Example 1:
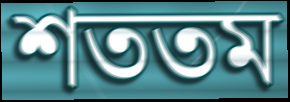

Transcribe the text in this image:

শততম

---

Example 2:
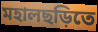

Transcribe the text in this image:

মহালছড়িতে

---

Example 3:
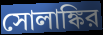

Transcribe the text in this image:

সোলাঙ্কির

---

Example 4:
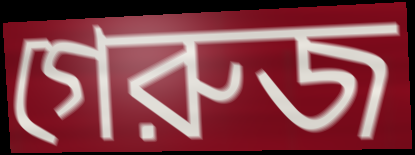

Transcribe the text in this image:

গেরুজ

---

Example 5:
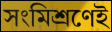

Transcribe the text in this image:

সংমিশ্রণেই